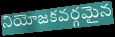
నియోజకవర్గమైన